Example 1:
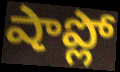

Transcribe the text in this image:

షాప్లో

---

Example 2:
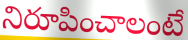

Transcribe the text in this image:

నిరూపించాలంటే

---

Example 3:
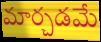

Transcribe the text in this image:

మార్చడమే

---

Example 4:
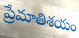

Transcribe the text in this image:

ప్రేమాతిశయం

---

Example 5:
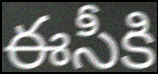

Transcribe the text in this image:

ఈసీకి